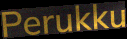
Perukku